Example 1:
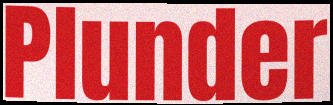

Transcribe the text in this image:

Plunder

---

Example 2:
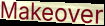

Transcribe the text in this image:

Makeover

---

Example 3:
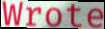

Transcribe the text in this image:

Wrote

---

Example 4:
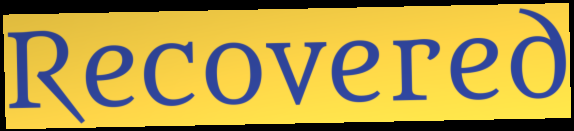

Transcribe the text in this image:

Recovered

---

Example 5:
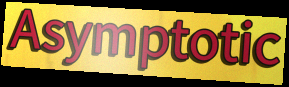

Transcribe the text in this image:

Asymptotic